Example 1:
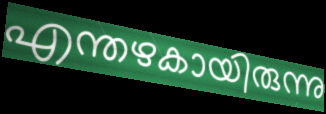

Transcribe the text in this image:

എന്തഴകായിരുന്നു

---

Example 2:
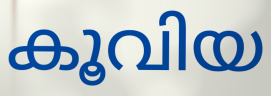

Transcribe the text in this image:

കൂവിയ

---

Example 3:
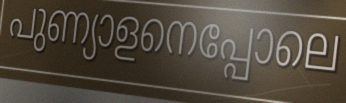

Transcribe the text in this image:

പുണ്യാളനെപ്പോലെ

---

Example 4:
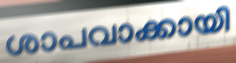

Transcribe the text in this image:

ശാപവാക്കായി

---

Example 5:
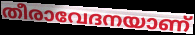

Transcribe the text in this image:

തീരാവേദനയാണ്